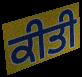
ਕੀਤੀ